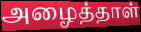
அழைத்தாள்